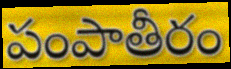
పంపాతీరం